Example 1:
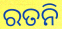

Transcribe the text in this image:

ରତନି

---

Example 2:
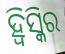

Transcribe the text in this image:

ହ୍ୱିସ୍କିର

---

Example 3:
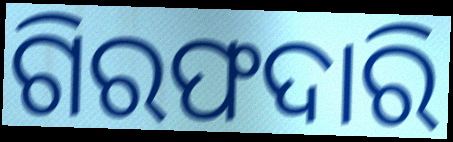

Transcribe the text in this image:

ଗିରଫଦାରି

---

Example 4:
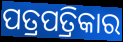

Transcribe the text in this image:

ପତ୍ରପତ୍ରିକାର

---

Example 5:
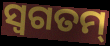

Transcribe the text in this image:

ସ୍ୱଗତମ୍